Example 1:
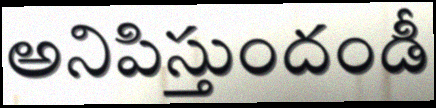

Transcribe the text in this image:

అనిపిస్తుందండీ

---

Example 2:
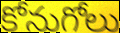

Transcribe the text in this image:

కోనుగోలు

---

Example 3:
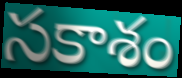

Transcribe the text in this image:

సకాశం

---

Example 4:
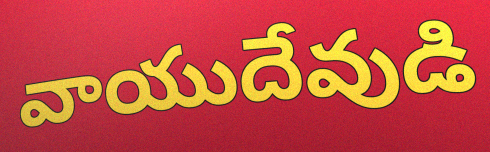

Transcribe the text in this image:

వాయుదేవుడి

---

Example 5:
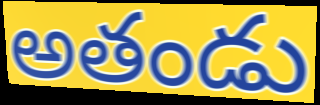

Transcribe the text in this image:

అతండు